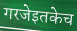
गरजेइतकेच